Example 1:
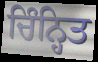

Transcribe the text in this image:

ਚਿੰਨ੍ਹਿਤ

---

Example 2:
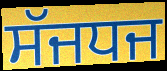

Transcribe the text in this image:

ਸੱਜਧਜ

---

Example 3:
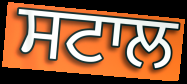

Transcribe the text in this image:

ਸਟਾਲ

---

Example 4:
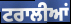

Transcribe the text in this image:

ਟਰਾਲੀਆਂ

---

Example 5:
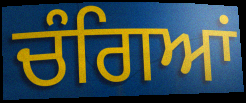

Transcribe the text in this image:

ਚੰਗਿਆਂ